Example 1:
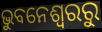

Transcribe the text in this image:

ଭୁବନେଶ୍ୱରରୁ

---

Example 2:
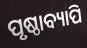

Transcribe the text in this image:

ପୃଷ୍ଠାବ୍ୟାପି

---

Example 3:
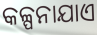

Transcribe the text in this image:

କଳ୍ପନାଯାଏ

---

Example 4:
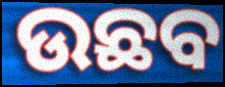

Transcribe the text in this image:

ଉଛବ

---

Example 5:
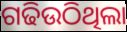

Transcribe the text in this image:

ଗଢିଉଠିଥିଲା